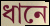
ধানে